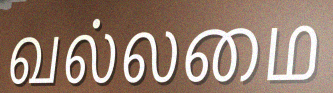
வல்லமை